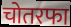
चोतरफा